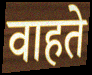
वाहते